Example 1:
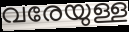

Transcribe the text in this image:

വരേയുള്ള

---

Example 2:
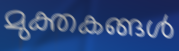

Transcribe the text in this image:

മുക്തകങ്ങൾ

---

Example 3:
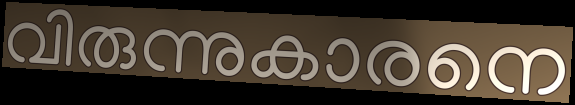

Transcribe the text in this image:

വിരുന്നുകാരനെ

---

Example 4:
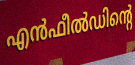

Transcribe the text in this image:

എൻഫീൽഡിന്റെ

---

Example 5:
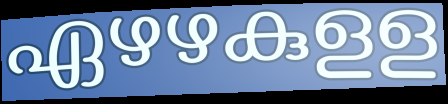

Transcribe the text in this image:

ഏഴഴകുളള